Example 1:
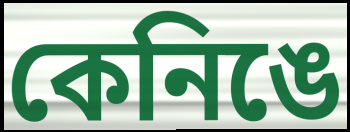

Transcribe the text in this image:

কেনিঙে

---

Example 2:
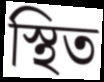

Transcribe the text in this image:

স্থিত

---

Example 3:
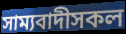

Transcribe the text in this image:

সাম্যবাদীসকল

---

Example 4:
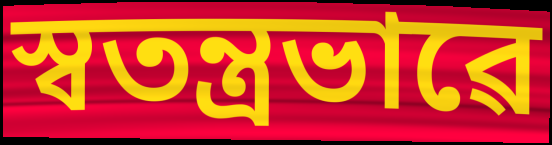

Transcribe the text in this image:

স্বতন্ত্ৰভাৱে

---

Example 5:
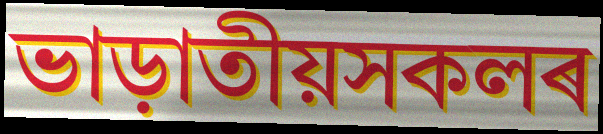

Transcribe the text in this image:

ভাড়াতীয়সকলৰ